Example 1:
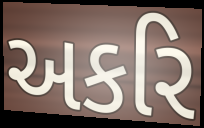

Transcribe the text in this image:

અકરિ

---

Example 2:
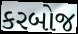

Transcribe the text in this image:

કરબોજ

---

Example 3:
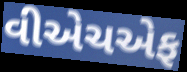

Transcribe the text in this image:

વીએચએફ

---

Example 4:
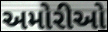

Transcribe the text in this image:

અમોરીઓ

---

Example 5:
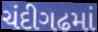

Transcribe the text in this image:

ચંદીગઢમાં